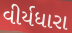
વીર્યધારા